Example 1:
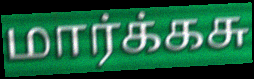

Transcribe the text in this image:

மார்க்கசு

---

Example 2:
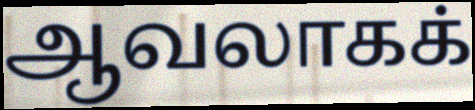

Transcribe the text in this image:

ஆவலாகக்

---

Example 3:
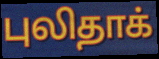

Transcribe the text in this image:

புலிதாக்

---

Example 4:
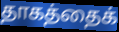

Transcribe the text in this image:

தாகத்தைக்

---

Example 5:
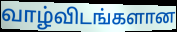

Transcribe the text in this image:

வாழ்விடங்களான